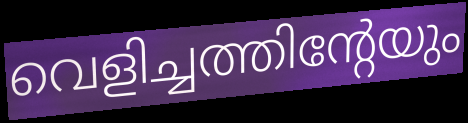
വെളിച്ചത്തിന്റേയും